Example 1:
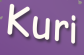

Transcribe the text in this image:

Kuri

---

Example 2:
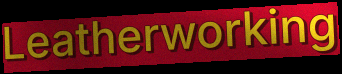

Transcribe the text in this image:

Leatherworking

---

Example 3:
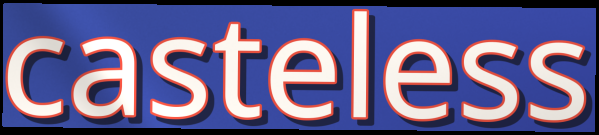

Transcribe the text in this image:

casteless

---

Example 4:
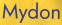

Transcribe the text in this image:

Mydon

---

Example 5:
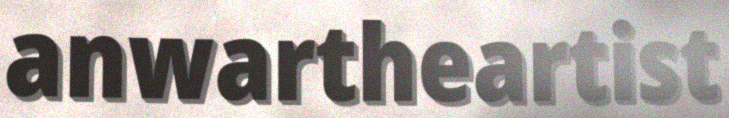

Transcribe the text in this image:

anwartheartist